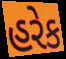
હરેક